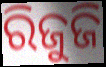
ରିଜୁଜି